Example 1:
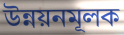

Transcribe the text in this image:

উন্নয়নমূলক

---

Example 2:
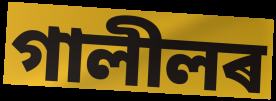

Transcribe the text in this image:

গালীলৰ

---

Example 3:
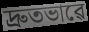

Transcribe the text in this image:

দ্ৰুতভাৱে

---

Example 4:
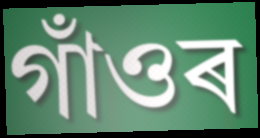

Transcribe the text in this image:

গাঁওৰ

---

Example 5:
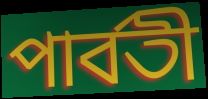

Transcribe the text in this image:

পাৰ্বতী